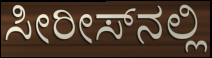
ಸೀರೀಸ್‌ನಲ್ಲಿ